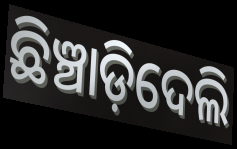
ଛିଞ୍ଚାଡ଼ିଦେଲି